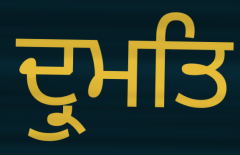
ਦ੍ਰੁਮਤਿ